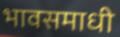
भावसमाधी